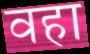
वहा